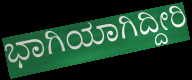
ಭಾಗಿಯಾಗಿದ್ದೀರಿ